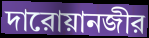
দারোয়ানজীর